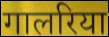
गालरिया